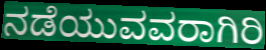
ನಡೆಯುವವರಾಗಿರಿ